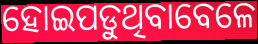
ହୋଇପଡୁଥିବାବେଳେ